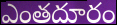
ఎంతదూరం